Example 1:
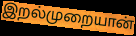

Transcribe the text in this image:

இறல்முறையான்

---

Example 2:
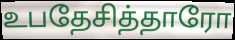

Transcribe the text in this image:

உபதேசித்தாரோ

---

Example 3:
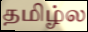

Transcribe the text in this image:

தமிழ்ல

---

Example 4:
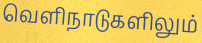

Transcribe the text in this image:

வெளிநாடுகளிலும்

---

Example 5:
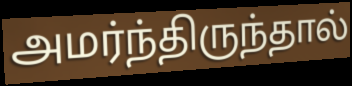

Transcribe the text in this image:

அமர்ந்திருந்தால்